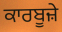
ਕਾਰਬੂਜ਼ੇ